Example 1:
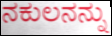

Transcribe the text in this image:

ನಕುಲನನ್ನು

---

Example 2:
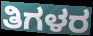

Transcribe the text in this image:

ತಿಗಳರ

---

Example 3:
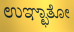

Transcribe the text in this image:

ಉಞ್ಛಾತೋ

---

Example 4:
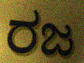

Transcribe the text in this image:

ರಜ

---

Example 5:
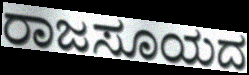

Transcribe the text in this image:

ರಾಜಸೂಯದ